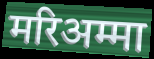
मरिअम्मा